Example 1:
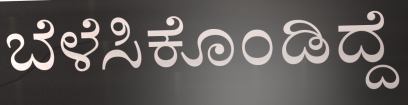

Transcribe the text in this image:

ಬೆಳೆಸಿಕೊಂಡಿದ್ದೆ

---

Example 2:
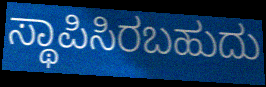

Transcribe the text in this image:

ಸ್ಥಾಪಿಸಿರಬಹುದು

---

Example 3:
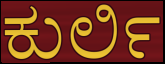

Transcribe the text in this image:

ಕುರ್ಲಿ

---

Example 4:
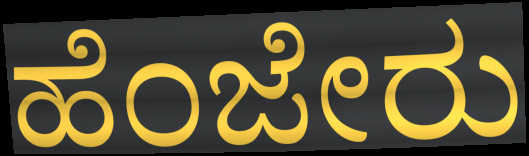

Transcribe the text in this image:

ಹೆಂಜೇರು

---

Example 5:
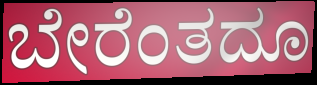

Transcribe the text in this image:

ಬೇರೆಂತದೂ